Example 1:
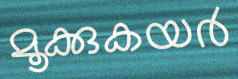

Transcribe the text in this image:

മൂക്കുകയർ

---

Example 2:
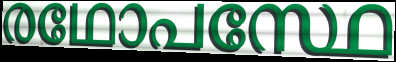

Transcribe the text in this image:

രഥോപസ്ഥേ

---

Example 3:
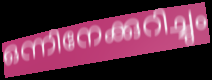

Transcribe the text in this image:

ഒന്നിനേക്കുറിച്ചും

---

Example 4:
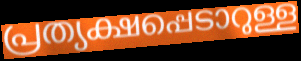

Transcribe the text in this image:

പ്രത്യക്ഷപ്പെടാറുള്ള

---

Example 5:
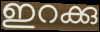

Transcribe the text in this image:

ഇറക്കു